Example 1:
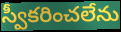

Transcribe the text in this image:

స్వీకరించలేను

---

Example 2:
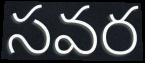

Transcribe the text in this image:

సవర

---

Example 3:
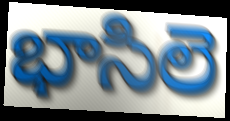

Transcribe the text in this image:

భాసిలె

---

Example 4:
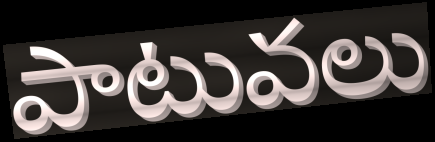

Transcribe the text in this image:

పాటువలు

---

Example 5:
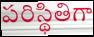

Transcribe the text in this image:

పరిస్థితిగా